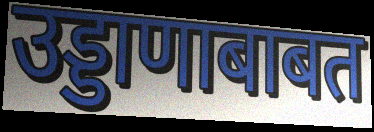
उड्डाणाबाबत